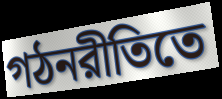
গঠনরীতিতে